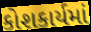
કોશકાર્યમાં